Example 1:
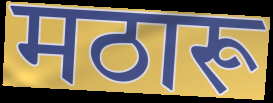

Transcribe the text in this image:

मठारू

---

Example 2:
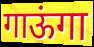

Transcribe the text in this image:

गाऊंगा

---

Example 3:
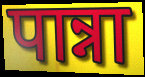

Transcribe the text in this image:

पान्ना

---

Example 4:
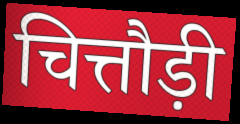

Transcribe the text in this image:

चित्तौड़ी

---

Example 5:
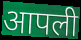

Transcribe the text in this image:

आपली